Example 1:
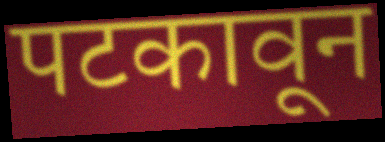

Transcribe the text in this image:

पटकावून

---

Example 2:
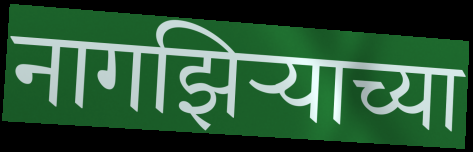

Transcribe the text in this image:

नागझिऱ्याच्या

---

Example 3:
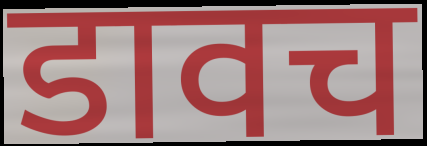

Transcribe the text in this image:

डावच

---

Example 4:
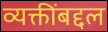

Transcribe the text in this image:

व्यक्तींबद्दल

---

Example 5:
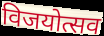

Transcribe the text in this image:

विजयोत्सव